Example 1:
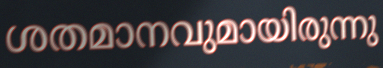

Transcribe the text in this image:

ശതമാനവുമായിരുന്നു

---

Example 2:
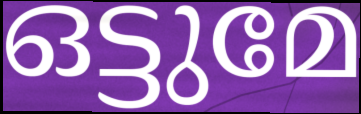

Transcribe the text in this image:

ഒട്ടുമേ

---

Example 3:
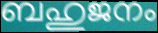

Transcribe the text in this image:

ബഹുജനം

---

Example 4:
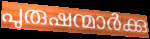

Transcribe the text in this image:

പുരുഷന്മാർക്കു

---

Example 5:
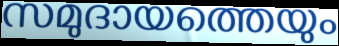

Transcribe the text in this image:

സമുദായത്തെയും